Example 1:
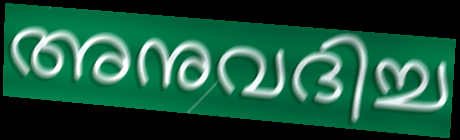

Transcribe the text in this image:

അനുവദിച്ച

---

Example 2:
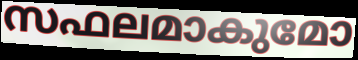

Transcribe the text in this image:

സഫലമാകുമോ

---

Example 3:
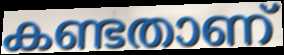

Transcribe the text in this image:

കണ്ടതാണ്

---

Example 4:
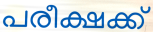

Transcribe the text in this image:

പരീക്ഷക്ക്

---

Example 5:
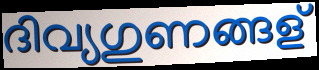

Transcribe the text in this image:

ദിവ്യഗുണങ്ങള്